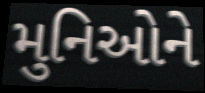
મુનિઓને